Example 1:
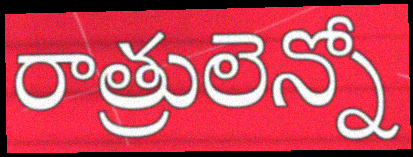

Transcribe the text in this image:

రాత్రులెన్నో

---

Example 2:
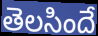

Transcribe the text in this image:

తెలసిందే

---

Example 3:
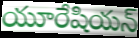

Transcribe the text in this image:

యూరేషియన్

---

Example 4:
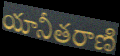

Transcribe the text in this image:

యానీతరాణి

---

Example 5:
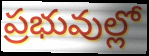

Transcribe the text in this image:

ప్రభువుల్లో